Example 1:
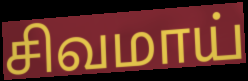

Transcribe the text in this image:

சிவமாய்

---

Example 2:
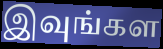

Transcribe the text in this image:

இவுங்கள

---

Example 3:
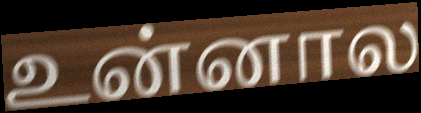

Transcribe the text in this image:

உன்னால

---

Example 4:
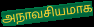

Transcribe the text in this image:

அநாவசியமாக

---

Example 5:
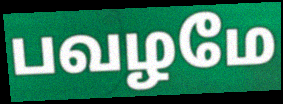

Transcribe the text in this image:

பவழமே